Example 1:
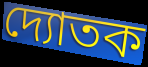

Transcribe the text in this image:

দ্যোতক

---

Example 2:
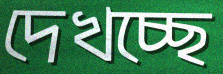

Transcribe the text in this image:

দেখচ্ছে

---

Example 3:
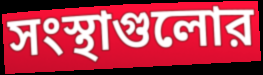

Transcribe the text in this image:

সংস্থাগুলোর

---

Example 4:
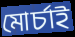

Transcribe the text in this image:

মোর্চাই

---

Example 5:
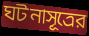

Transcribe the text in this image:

ঘটনাসূত্রের